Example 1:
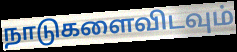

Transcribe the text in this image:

நாடுகளைவிடவும்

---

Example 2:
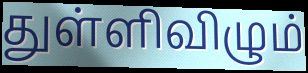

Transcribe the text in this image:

துள்ளிவிழும்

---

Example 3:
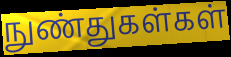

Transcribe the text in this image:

நுண்துகள்கள்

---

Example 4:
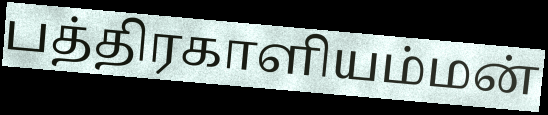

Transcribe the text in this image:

பத்திரகாளியம்மன்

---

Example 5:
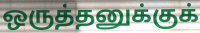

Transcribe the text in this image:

ஒருத்தனுக்குக்